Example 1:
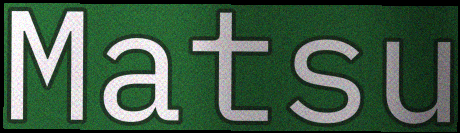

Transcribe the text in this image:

Matsu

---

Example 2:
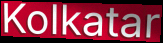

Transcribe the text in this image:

Kolkatar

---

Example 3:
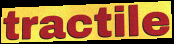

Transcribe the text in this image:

tractile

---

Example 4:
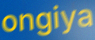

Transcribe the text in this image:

ongiya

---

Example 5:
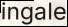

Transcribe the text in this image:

ingale